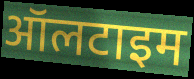
ऑलटाइम